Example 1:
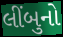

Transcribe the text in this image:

લીંબુનો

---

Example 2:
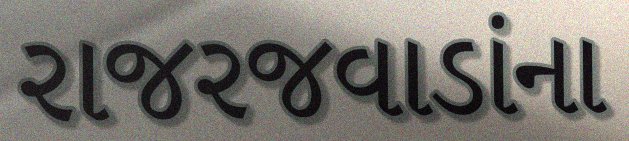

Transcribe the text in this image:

રાજરજવાડાંના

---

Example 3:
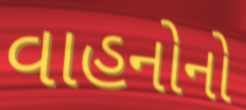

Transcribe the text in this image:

વાહનોનો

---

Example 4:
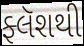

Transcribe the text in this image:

ફ્લૅશથી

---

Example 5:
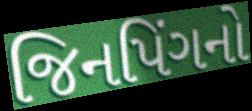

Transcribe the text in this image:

જિનપિંગનો